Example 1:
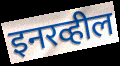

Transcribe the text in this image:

इनरव्हील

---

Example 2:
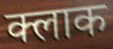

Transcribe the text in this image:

क्लाक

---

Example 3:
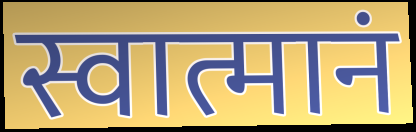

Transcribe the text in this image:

स्वात्मानं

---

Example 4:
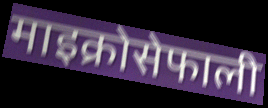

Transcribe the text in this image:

माइक्रोसेफाली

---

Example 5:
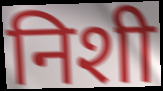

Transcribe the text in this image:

निशी